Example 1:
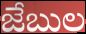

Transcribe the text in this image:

జేబుల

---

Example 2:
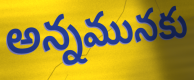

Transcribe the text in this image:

అన్నమునకు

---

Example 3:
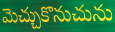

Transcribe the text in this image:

మెచ్చుకొనుచును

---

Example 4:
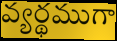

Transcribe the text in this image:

వ్యర్థముగా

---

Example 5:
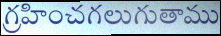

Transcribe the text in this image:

గ్రహించగలుగుతాము